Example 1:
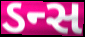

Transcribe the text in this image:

ડન્સ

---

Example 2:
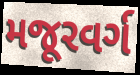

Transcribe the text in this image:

મજૂરવર્ગ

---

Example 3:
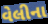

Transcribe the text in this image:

વેલીના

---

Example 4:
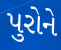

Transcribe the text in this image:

પુરોને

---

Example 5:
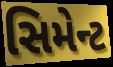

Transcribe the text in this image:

સિમેન્ટ